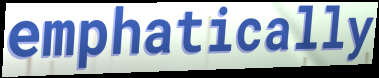
emphatically